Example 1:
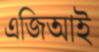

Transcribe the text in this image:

এজিআই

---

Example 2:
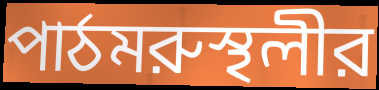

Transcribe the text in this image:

পাঠমরুস্থলীর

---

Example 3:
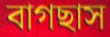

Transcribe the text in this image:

বাগছাস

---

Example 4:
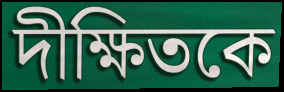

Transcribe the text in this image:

দীক্ষিতকে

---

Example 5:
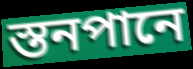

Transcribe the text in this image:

স্তনপানে